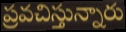
ప్రవచిస్తున్నారు